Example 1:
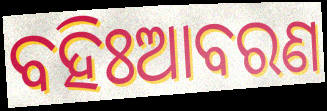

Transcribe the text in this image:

ବହିଃଆବରଣ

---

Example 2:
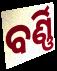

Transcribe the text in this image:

ବର୍ଣ୍ଣି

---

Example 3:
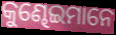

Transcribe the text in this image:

କୁଣ୍ଢେଇମାନେ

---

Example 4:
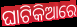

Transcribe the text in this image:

ଘାଟିକିଆରେ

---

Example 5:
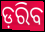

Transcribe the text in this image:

ଡ଼ରିବ